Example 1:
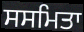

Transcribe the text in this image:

ਸਸਮਿਤਾ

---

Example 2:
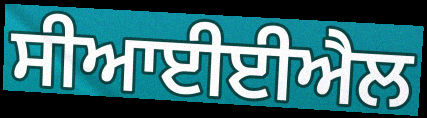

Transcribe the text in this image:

ਸੀਆਈਈਐਲ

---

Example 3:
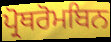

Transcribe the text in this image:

ਪ੍ਰੋਥਰੋਮਬਿਨ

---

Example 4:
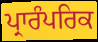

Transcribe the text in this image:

ਪ੍ਰਾਰੰਪਰਿਕ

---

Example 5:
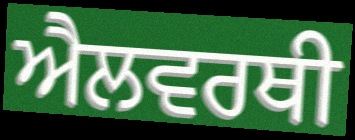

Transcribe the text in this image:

ਐਲਵਰਥੀ